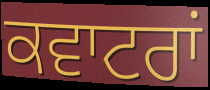
ਕਵਾਟਰਾਂ